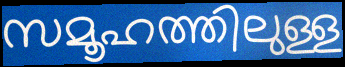
സമൂഹത്തിലുള്ള